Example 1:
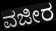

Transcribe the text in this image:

ವಜೀರ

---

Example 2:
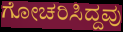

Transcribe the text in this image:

ಗೋಚರಿಸಿದ್ದವು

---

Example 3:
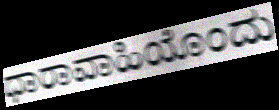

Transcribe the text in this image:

ಧಾರಾವಾಹಿಯೊಂದು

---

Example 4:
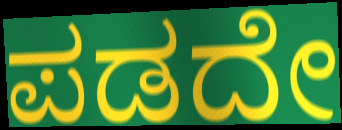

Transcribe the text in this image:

ಪಡದೇ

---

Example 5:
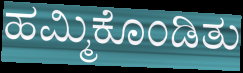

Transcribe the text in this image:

ಹಮ್ಮಿಕೊಂಡಿತು